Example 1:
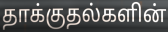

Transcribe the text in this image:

தாக்குதல்களின்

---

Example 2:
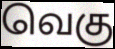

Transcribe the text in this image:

வெகு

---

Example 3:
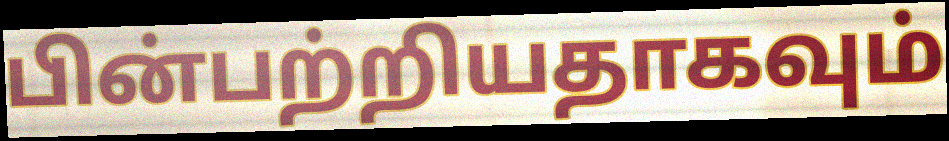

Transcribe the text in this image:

பின்பற்றியதாகவும்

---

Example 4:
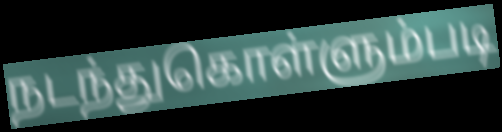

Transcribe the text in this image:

நடந்துகொள்ளும்படி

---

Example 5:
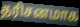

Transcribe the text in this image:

தரிசனமாக